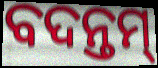
ବଦନ୍ତମ୍